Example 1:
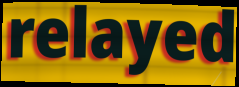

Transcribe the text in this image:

relayed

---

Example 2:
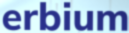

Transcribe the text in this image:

erbium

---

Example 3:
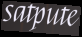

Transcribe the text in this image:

satpute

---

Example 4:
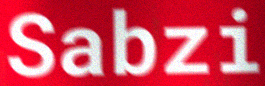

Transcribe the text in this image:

Sabzi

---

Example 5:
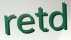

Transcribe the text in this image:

retd